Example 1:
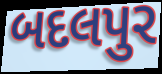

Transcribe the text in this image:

બદલપુર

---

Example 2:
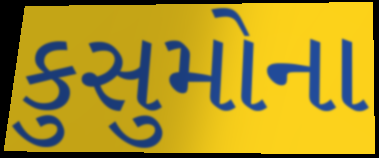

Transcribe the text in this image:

કુસુમોના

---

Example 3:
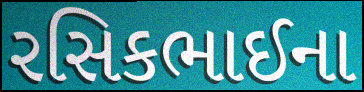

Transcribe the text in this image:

રસિકભાઈના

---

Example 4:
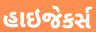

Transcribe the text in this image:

હાઇજેકર્સ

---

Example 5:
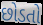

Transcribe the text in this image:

છોડતો